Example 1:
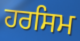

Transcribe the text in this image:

ਹਰਸਿਮ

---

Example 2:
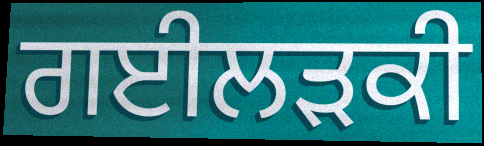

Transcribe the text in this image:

ਗਈਲੜਕੀ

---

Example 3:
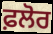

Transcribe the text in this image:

ਫ਼ਲੋਰ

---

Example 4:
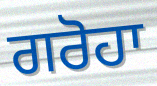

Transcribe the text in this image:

ਗਰੋਹਾ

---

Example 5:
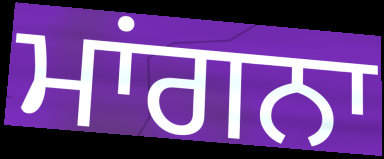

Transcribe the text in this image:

ਮਾਂਗਨਾ